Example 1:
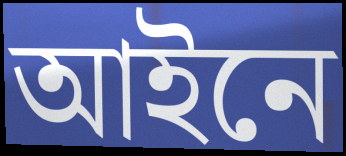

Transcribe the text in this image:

আইনে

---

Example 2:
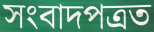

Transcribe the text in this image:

সংবাদপত্ৰত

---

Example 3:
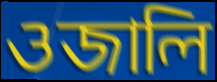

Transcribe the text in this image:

ওজালি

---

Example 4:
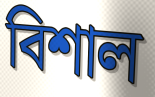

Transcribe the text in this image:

বিশাল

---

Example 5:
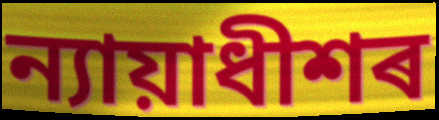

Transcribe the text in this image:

ন্যায়াধীশৰ